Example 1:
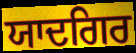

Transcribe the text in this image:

ਯਾਦਗਿਰ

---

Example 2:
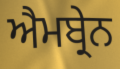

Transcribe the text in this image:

ਐਮਬ੍ਰੇਨ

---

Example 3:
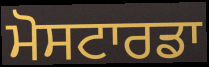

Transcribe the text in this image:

ਮੋਸਟਾਰਡਾ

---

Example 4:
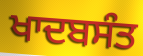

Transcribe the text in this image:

ਖਾਦਬਸੰਤ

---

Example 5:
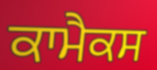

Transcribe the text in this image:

ਕਾਮੈਕਸ